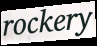
rockery